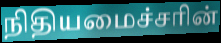
நிதியமைச்சரின்